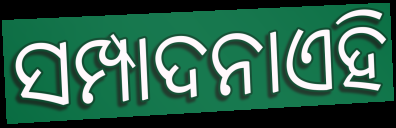
ସମ୍ପାଦନାଏହି